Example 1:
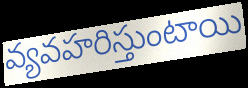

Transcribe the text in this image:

వ్యవహరిస్తుంటాయి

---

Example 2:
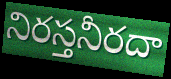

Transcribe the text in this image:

నిరస్తనీరదా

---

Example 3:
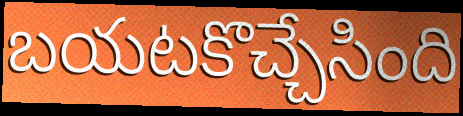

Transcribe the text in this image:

బయటకొచ్చేసింది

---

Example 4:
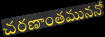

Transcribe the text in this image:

చరణాంతముననో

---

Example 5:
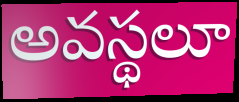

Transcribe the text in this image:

అవస్థలూ